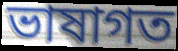
ভাষাগত